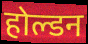
होल्डन